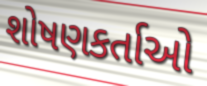
શોષણકર્તાઓ